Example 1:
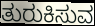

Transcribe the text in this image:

ತುರುಕಿಸುವ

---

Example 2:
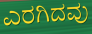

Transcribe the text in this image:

ಎರಗಿದವು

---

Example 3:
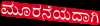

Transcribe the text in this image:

ಮೂರನೆಯದಾಗಿ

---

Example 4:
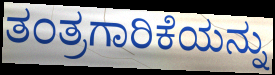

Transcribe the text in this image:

ತಂತ್ರಗಾರಿಕೆಯನ್ನು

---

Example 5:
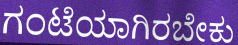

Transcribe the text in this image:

ಗಂಟೆಯಾಗಿರಬೇಕು